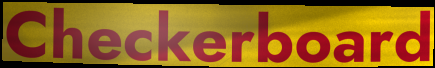
Checkerboard